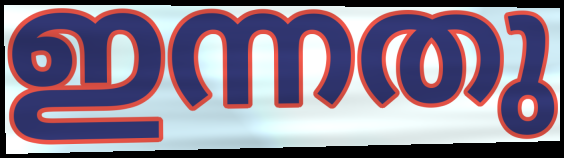
ഇന്നതു